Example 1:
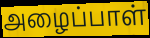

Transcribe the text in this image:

அழைப்பாள்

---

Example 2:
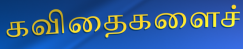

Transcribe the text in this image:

கவிதைகளைச்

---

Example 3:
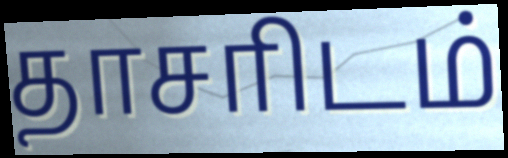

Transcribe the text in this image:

தாசரிடம்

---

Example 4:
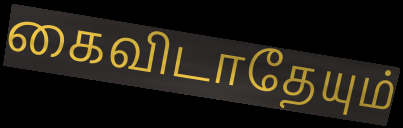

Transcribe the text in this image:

கைவிடாதேயும்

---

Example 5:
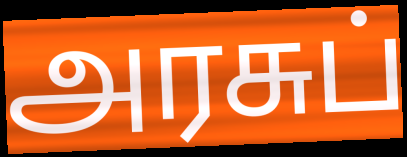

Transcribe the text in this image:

அரசுப்